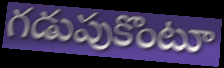
గడుపుకొంటూ